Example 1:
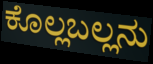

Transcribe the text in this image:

ಕೊಲ್ಲಬಲ್ಲನು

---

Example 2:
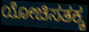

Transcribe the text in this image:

ಯೋಚಿಸತಕ್ಕ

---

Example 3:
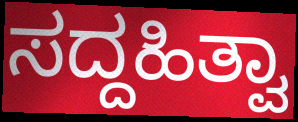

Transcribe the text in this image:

ಸದ್ದಹಿತ್ವಾ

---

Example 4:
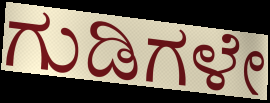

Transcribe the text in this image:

ಗುಡಿಗಳೇ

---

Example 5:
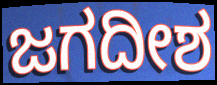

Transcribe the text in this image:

ಜಗದೀಶ